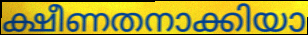
ക്ഷീണതനാക്കിയാ